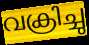
വക്രിച്ചു